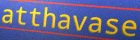
atthavase